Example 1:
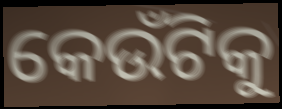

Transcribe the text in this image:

କେଉଁଟିକୁ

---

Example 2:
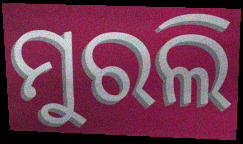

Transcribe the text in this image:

ମୁରଲି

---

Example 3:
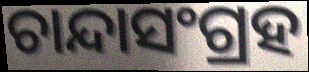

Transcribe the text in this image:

ଚାନ୍ଦାସଂଗ୍ରହ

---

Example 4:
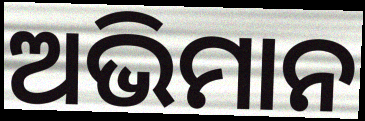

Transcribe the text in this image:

ଅଭିମାନ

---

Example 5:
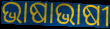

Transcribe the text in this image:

ଭାଷାଭାଷୀ